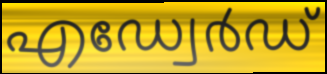
എഡ്വേർഡ്